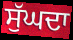
ਸੁੱਘਦਾ